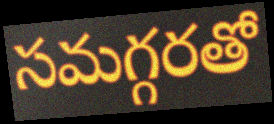
సమగ్గరతో